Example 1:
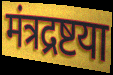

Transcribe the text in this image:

मंत्रद्रष्टया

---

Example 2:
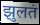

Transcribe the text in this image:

झुलतं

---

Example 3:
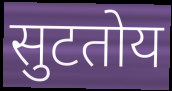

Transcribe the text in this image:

सुटतोय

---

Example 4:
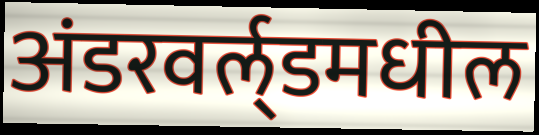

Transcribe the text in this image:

अंडरवर्ल्डमधील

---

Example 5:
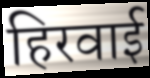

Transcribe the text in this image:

हिरवाई